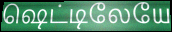
ஷெட்டிலேயே